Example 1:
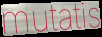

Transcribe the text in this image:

mutatis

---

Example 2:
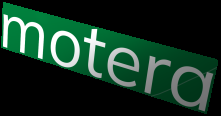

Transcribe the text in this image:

motera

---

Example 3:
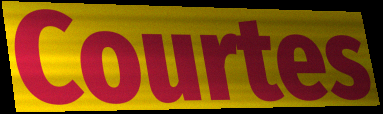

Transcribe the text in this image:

Courtes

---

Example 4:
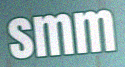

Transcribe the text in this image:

smm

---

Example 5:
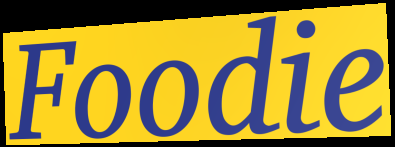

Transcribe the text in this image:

Foodie